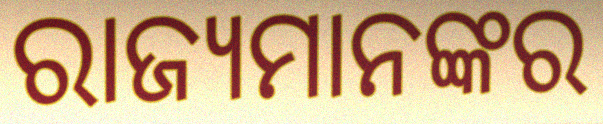
ରାଜ୍ୟମାନଙ୍କର